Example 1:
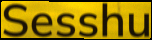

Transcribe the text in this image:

Sesshu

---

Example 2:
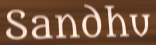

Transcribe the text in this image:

Sandhu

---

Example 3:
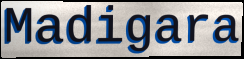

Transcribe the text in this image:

Madigara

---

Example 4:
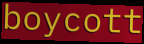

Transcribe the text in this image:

boycott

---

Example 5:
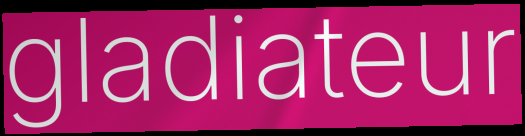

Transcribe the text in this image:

gladiateur